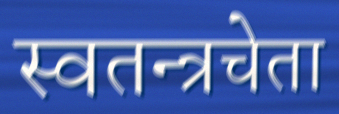
स्वतन्त्रचेता